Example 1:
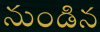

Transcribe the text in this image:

నుండిన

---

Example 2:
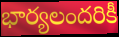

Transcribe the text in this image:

భార్యలందరికీ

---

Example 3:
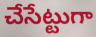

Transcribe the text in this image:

చేసేట్టుగా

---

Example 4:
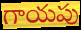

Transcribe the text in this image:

గాయపు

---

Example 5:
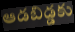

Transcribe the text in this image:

ఆడబిడ్డకు